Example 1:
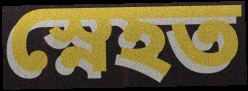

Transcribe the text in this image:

স্নেহত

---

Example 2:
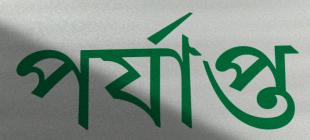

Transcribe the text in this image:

পৰ্যাপ্ত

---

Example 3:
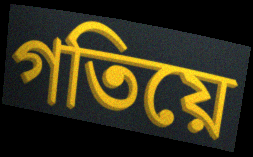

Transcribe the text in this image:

গতিয়ে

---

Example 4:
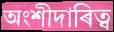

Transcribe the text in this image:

অংশীদাৰিত্ব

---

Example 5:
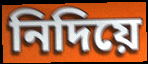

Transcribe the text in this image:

নিদিয়ে